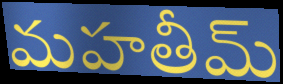
మహతీమ్